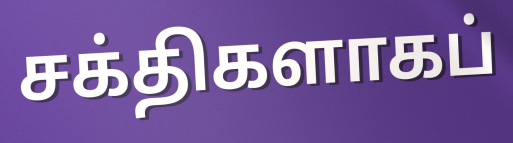
சக்திகளாகப்